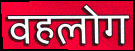
वहलोग